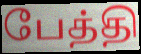
பேத்தி